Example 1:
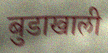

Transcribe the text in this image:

बुडाखाली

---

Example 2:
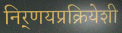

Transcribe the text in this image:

निर्णयप्रक्रियेशी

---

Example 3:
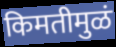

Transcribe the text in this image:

किमतीमुळं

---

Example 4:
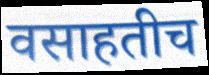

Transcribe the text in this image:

वसाहतीच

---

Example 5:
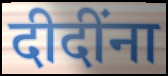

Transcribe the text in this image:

दीदींना